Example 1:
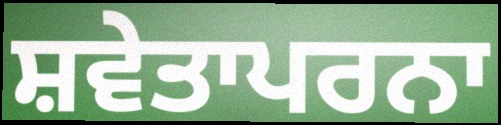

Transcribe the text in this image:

ਸ਼ਵੇਤਾਪਰਨਾ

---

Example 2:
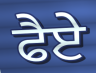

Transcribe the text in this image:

ਫੈਏ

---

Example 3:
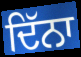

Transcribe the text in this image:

ਦਿੱਨਾ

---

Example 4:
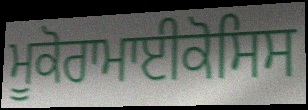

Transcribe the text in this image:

ਮੂਕੋਰਾਮਾਈਕੋਸਿਸ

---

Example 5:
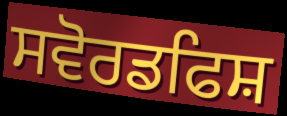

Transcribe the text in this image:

ਸਵੋਰਡਫਿਸ਼